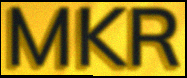
MKR